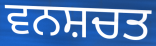
ਵਨਸ਼ਚਤ